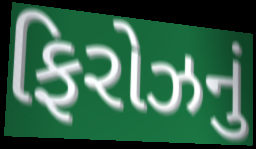
ફિરોઝનું